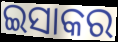
ଇସାକର